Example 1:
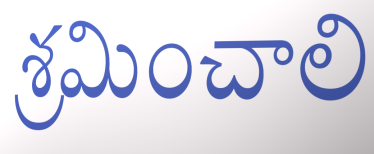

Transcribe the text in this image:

శ్రమించాలి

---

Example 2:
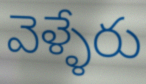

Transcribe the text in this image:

వెళ్ళేరు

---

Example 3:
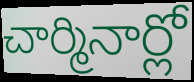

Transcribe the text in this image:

చార్మినార్లో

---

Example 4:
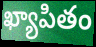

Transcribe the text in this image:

ఖ్యాపితం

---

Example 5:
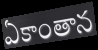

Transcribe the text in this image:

ఏకాంతాన